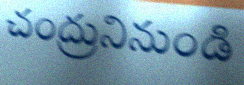
చంద్రునినుండి